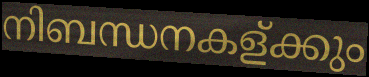
നിബന്ധനകള്ക്കും